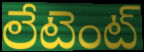
లేటెంట్